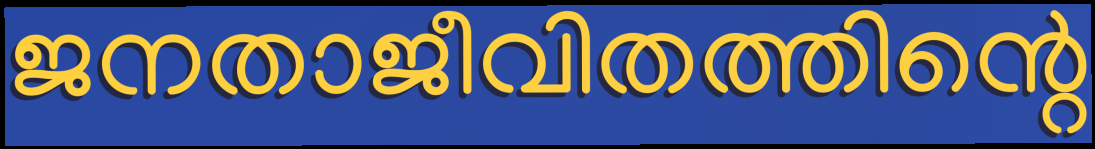
ജനതാജീവിതത്തിന്റെ